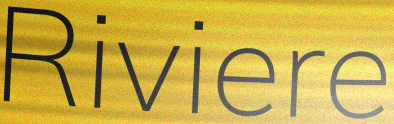
Riviere